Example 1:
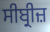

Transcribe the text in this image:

ਸੀਬ੍ਰੀਜ਼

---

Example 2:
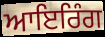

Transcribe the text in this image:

ਆਇਰਿੰਗ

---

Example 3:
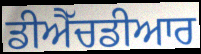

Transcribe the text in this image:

ਡੀਐੱਚਡੀਆਰ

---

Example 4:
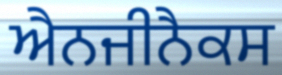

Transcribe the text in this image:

ਐਨਜੀਨੈਕਸ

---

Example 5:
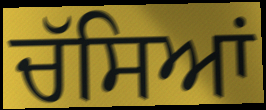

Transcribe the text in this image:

ਚੱਸਿਆਂ